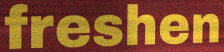
freshen